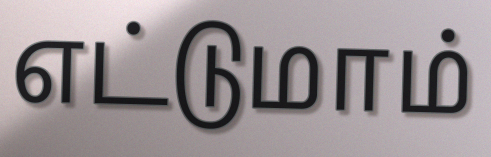
எட்டுமாம்